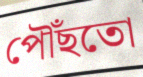
পৌঁছতো